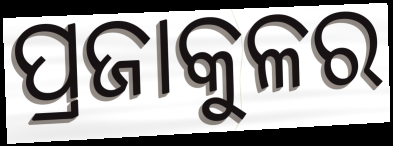
ପ୍ରଜାକୁଳର